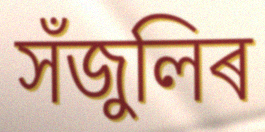
সঁজুলিৰ